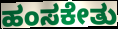
ಹಂಸಕೇತು